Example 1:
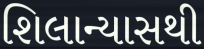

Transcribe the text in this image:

શિલાન્યાસથી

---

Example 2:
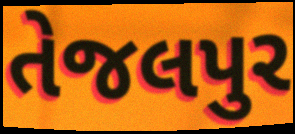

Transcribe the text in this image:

તેજલપુર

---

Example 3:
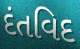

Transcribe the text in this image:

દંતવિદ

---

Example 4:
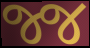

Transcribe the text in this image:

જ્જ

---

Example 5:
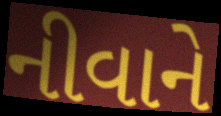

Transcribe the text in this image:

નીવાને